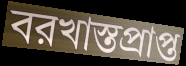
বরখাস্তপ্রাপ্ত